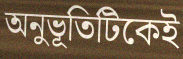
অনুভূতিটিকেই